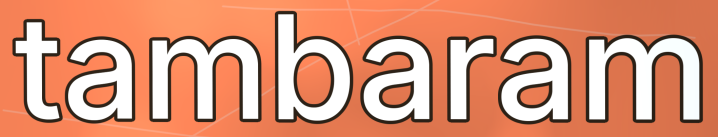
tambaram